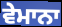
ਵੇਮਾਨਾ